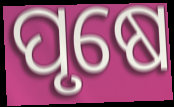
ପୃଷେ